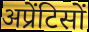
अप्रेंटिसों